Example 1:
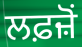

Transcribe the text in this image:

ਲਫ਼ਜ਼ੋਂ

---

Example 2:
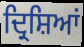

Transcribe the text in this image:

ਦ੍ਰਿਸ਼ਿਆਂ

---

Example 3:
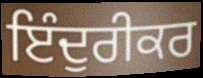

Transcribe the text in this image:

ਇੰਦੁਰੀਕਰ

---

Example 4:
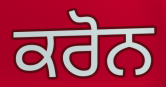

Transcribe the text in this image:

ਕਰੋਨ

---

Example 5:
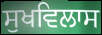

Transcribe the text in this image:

ਸੁਖਵਿਲਾਸ